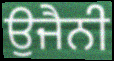
ਉਜੈਨੀ